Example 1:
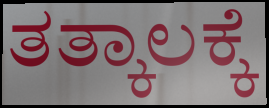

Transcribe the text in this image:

ತತ್ಕಾಲಕ್ಕೆ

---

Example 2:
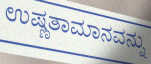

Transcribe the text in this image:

ಉಷ್ಣತಾಮಾನವನ್ನು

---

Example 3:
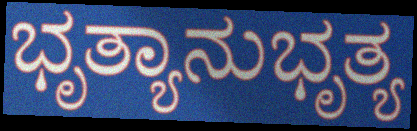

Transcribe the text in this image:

ಭೃತ್ಯಾನುಭೃತ್ಯ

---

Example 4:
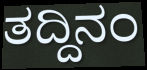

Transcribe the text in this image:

ತದ್ದಿನಂ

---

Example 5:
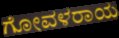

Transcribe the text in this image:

ಗೋವಳರಾಯ